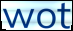
wot